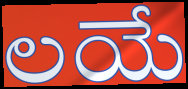
లయే